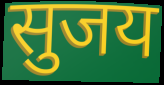
सुजय